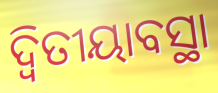
ଦ୍ବିତୀୟାବସ୍ଥା